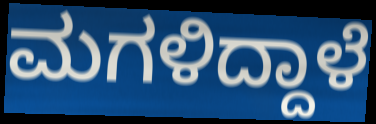
ಮಗಳಿದ್ದಾಳೆ